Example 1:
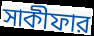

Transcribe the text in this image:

সাকীফার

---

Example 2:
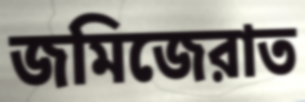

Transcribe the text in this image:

জমিজেরাত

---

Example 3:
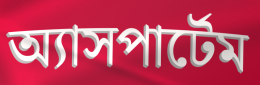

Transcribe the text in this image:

অ্যাসপার্টেম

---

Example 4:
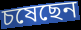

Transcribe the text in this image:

চষেছেন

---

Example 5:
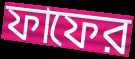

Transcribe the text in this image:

ফাফের